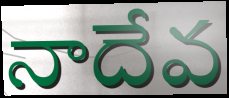
నాదేవ